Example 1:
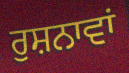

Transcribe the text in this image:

ਰੁਸ਼ਨਾਵਾਂ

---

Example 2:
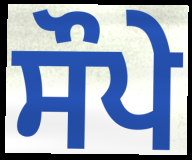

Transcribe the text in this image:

ਸੌਪੇ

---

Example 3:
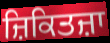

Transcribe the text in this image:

ਜ਼ਿਕਿਤਜ਼ਾ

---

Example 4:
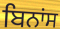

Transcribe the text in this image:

ਬਿਨਾਂਸ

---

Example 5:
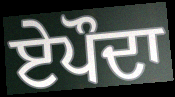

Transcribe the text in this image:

ਏਪੌਦਾ